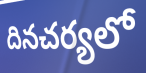
దినచర్యలో